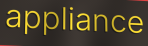
appliance